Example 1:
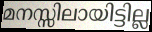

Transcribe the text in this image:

മനസ്സിലായിട്ടില്ല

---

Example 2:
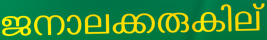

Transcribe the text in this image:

ജനാലക്കരുകില്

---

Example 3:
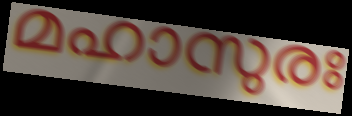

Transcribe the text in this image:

മഹാസുരഃ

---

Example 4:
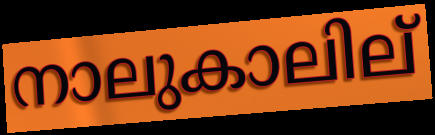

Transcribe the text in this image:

നാലുകാലില്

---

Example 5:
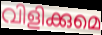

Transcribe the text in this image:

വിളിക്കുമെ